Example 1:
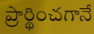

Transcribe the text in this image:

ప్రార్థించగానే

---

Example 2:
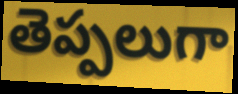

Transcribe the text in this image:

తెప్పలుగా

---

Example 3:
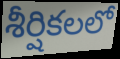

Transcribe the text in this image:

శీర్షికలలో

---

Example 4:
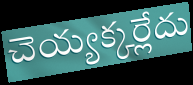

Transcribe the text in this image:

చెయ్యక్కర్లేదు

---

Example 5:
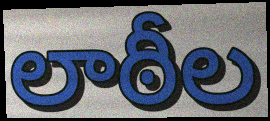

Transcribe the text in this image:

లాఠీల